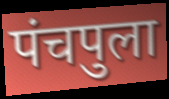
पंचपुला